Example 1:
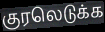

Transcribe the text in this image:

குரலெடுக்க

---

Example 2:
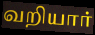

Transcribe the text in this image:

வறியார்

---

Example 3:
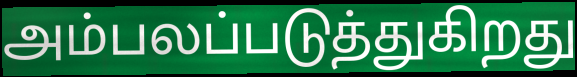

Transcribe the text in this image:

அம்பலப்படுத்துகிறது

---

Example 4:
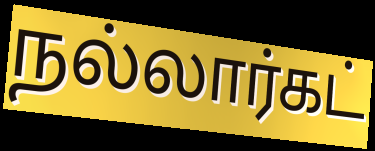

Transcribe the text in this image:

நல்லார்கட்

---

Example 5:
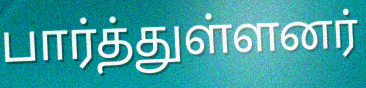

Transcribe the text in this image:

பார்த்துள்ளனர்